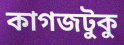
কাগজটুকু